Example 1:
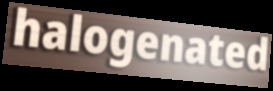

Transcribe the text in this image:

halogenated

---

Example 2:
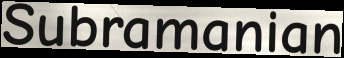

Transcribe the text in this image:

Subramanian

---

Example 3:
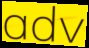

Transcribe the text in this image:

adv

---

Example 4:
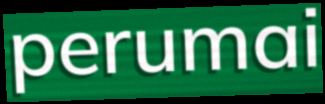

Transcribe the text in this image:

perumai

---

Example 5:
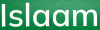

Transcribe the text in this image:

Islaam